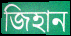
জিহান